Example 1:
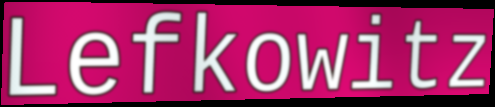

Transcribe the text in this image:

Lefkowitz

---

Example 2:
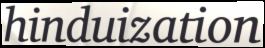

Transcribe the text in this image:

hinduization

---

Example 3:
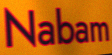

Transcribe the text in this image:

Nabam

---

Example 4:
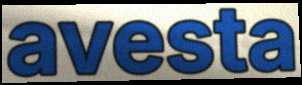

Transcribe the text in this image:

avesta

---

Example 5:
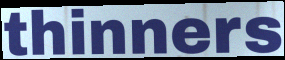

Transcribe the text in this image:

thinners